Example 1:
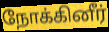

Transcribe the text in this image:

நோக்கினீர்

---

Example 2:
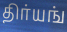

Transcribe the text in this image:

திர்யங்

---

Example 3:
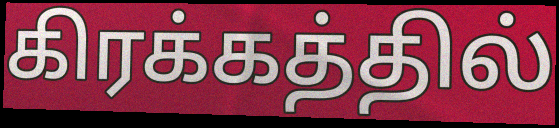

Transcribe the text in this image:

கிரக்கத்தில்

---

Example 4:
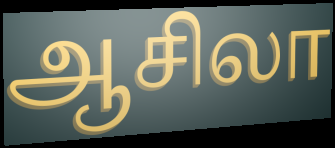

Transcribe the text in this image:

ஆசிலா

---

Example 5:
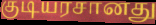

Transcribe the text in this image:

குடியரசானது